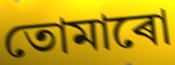
তোমাৰো